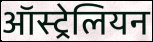
ऑस्ट्रेलियन